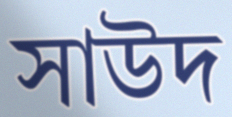
সাউদ